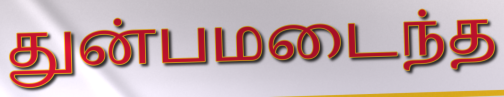
துன்பமடைந்த